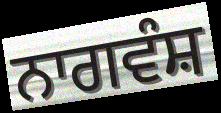
ਨਾਗਵੰਸ਼